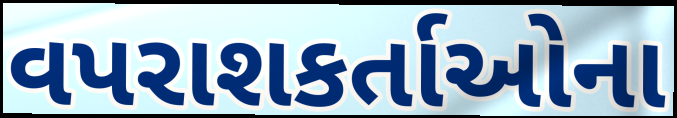
વપરાશકર્તાઓના